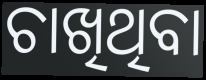
ଚାଖିଥିବା